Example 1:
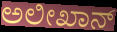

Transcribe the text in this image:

ಅಲೀಖಾನ್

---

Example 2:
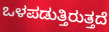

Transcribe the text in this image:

ಒಳಪಡುತ್ತಿರುತ್ತದೆ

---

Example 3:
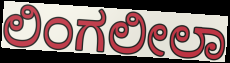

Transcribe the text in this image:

ಲಿಂಗಲೀಲಾ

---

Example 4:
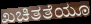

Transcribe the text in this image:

ಖಚಿತತೆಯೂ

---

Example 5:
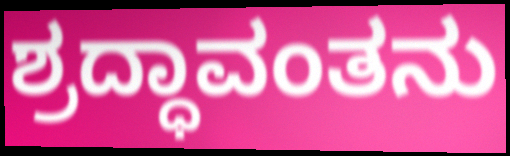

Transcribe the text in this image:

ಶ್ರದ್ಧಾವಂತನು